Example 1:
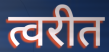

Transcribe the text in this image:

त्वरीत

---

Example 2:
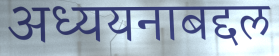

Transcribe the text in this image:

अध्ययनाबद्दल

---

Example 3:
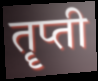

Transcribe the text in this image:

तॄप्ती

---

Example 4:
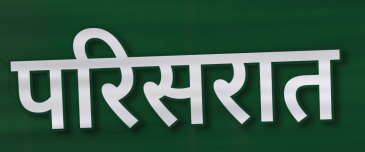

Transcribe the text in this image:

परिसरात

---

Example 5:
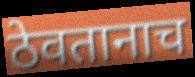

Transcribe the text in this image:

ठेवतानाच